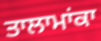
ਤਾਲਾਮਾਂਕਾ